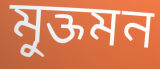
মুক্তমন